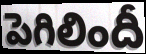
పెగిలిందీ